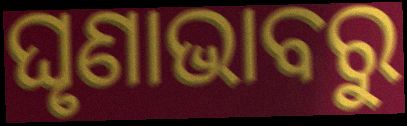
ଘୃଣାଭାବରୁ